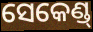
ସେକେଣ୍ଡ୍